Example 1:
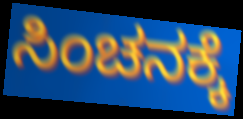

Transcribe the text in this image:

ಸಿಂಚನಕ್ಕೆ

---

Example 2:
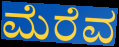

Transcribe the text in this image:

ಮೆರೆವ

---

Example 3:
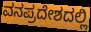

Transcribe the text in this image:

ವನಪ್ರದೇಶದಲ್ಲಿ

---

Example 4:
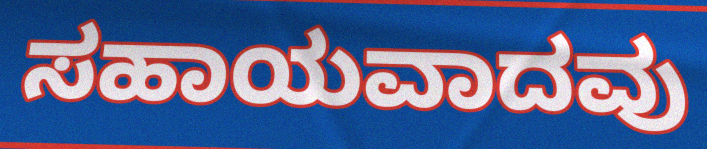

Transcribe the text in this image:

ಸಹಾಯವಾದವು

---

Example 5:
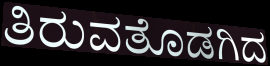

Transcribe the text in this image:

ತಿರುವತೊಡಗಿದ